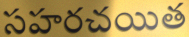
సహరచయిత